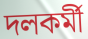
দলকর্মী